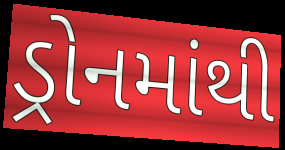
ડ્રોનમાંથી